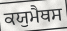
ਕਯੁਮੈਥਸ